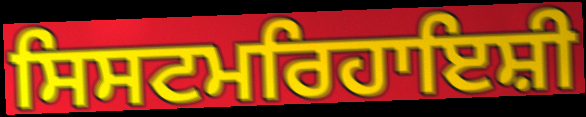
ਸਿਸਟਮਰਿਹਾਇਸ਼ੀ